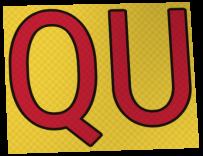
QU